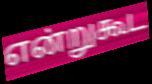
என்றுகூட